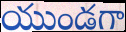
యుండగా